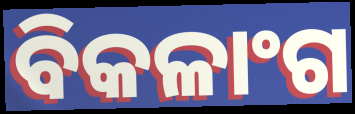
ବିକଳାଂଗ